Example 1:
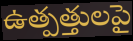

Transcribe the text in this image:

ఉత్పత్తులపై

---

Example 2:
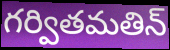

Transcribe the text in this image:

గర్వితమతిన్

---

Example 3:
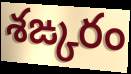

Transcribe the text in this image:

శఙ్కరం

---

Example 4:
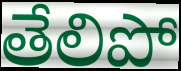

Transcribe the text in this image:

తేలిపో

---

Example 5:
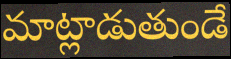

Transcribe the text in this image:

మాట్లాడుతుండే